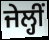
ਜੇਲ੍ਹੀਂ